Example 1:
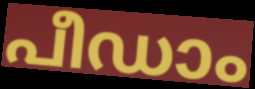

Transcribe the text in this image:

പീഡാം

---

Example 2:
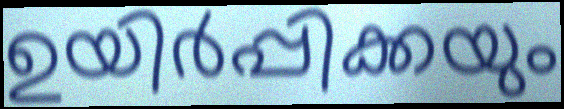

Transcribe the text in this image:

ഉയിർപ്പിക്കയും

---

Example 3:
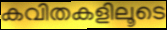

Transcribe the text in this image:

കവിതകളിലൂടെ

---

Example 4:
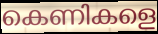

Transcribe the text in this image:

കെണികളെ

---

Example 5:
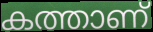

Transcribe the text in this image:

കത്താണ്